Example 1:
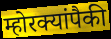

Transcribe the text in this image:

म्होरक्यांपैकी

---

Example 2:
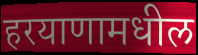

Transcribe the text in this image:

हरयाणामधील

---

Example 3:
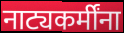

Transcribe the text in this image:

नाट्यकर्मींना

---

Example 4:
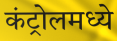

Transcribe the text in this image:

कंट्रोलमध्ये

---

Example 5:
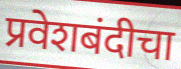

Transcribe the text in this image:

प्रवेशबंदीचा